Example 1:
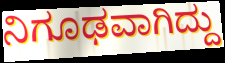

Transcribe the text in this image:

ನಿಗೂಢವಾಗಿದ್ದು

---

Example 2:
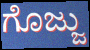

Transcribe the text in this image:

ಗೊಜ್ಜು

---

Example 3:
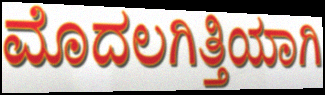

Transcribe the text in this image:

ಮೊದಲಗಿತ್ತಿಯಾಗಿ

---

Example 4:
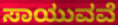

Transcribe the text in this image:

ಸಾಯುವವೆ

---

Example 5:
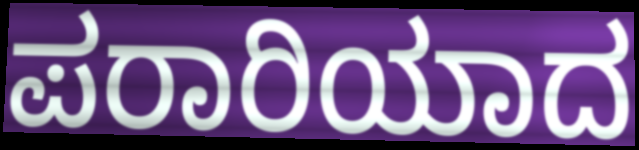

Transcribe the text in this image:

ಪರಾರಿಯಾದ